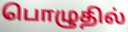
பொழுதில்